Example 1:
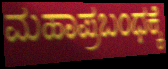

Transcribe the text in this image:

ಮಹಾಪ್ರಬಂಧಕ್ಕೆ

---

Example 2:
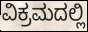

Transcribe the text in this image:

ವಿಕ್ರಮದಲ್ಲಿ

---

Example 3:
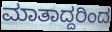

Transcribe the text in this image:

ಮಾತಾದ್ದರಿಂದ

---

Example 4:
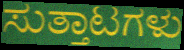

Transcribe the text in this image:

ಸುತ್ತಾಟಗಳು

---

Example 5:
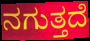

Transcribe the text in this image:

ನಗುತ್ತದೆ